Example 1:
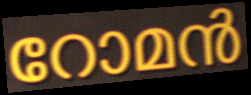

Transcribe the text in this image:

റോമൻ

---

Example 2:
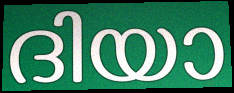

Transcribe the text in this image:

ദിയാ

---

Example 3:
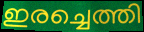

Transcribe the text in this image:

ഇരച്ചെത്തി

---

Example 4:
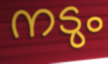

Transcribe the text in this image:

നടും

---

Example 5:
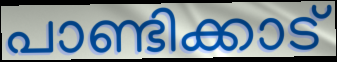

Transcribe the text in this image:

പാണ്ടിക്കാട്